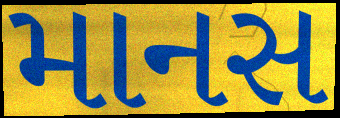
માનસ